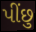
પીંછુ